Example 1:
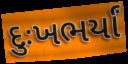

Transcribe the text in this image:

દુઃખભર્યાં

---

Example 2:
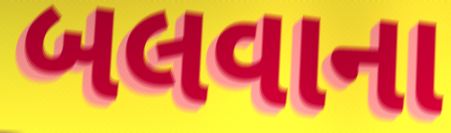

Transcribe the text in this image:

બલવાના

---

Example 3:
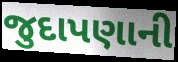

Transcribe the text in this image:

જુદાપણાની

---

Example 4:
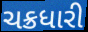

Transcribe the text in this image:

ચક્રધારી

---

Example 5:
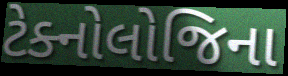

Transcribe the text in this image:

ટેક્નોલોજિના